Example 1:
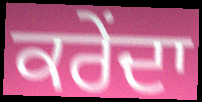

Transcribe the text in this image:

ਕਰੇਂਦਾ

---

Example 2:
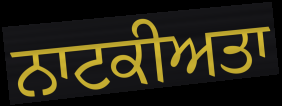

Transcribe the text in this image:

ਨਾਟਕੀਅਤਾ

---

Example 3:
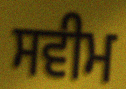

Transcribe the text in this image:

ਸਵੀਮ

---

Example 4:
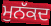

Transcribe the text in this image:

ਮੁਨੱਕਦ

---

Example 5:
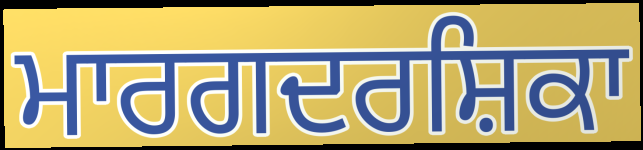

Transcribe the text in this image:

ਮਾਰਗਦਰਸ਼ਿਕਾ